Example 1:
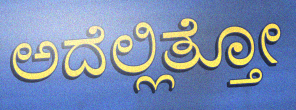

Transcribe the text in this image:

ಅದೆಲ್ಲಿತ್ತೋ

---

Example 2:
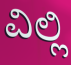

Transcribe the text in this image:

ವಿಲ್ಲಿ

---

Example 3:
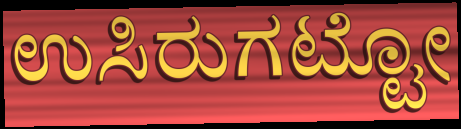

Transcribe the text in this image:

ಉಸಿರುಗಟ್ಟೋ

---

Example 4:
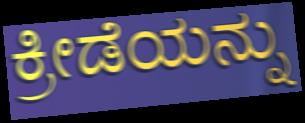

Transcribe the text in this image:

ಕ್ರೀಡೆಯನ್ನು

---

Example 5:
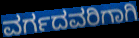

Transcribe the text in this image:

ವರ್ಗದವರಿಗಾಗಿ